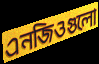
এনজিওগুলো